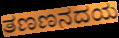
ತಣಣನದಯ